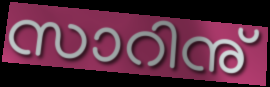
സാറിനു്